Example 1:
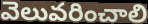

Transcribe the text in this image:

వెలువరించాలి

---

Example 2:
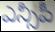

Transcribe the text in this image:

ఎన్సీపీ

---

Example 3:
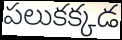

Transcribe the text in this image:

పలుకక్కడ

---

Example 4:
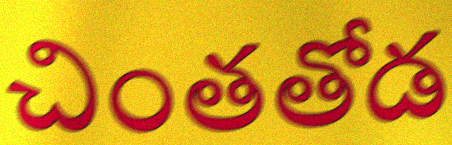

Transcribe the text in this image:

చింతతోడ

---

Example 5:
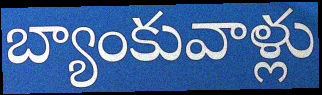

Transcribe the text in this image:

బ్యాంకువాళ్లు